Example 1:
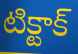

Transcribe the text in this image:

టిక్టాక్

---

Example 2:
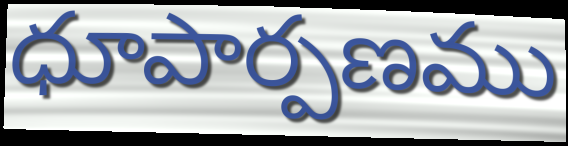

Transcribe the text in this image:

ధూపార్పణము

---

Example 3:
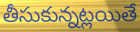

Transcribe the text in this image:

తీసుకున్నట్లయితే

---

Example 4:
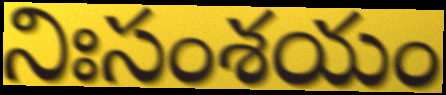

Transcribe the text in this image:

నిఃసంశయం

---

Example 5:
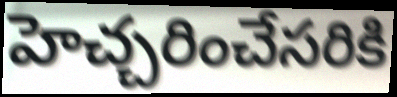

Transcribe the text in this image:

హెచ్చరించేసరికి